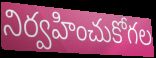
నిర్వహించుకోగల